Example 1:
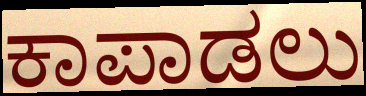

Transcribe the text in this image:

ಕಾಪಾಡಲು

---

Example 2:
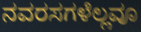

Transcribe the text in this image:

ನವರಸಗಳೆಲ್ಲವೂ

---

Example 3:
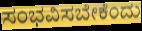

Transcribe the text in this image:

ಸಂಭವಿಸಬೇಕೆಂದು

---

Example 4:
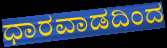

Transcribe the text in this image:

ಧಾರವಾಡದಿಂದ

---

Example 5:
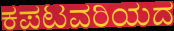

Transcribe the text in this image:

ಕಪಟವರಿಯದ